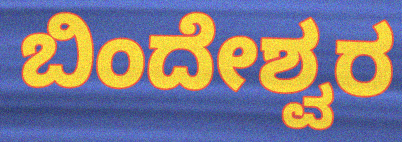
ಬಿಂದೇಶ್ವರ